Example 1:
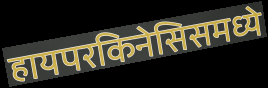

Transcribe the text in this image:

हायपरकिनेसिसमध्ये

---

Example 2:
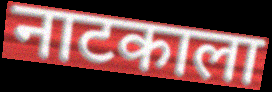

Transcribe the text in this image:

नाटकाला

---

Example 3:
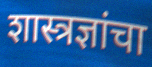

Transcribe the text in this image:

शास्त्रज्ञांचा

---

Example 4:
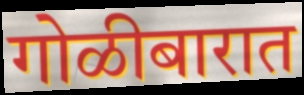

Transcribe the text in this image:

गोळीबारात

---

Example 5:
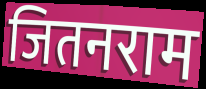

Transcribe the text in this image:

जितनराम